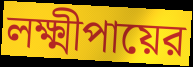
লক্ষ্মীপায়ের